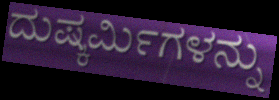
ದುಷ್ಕರ್ಮಿಗಳನ್ನು